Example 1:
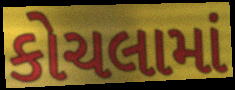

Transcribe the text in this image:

કોચલામાં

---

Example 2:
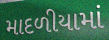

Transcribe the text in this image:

માદળીયામાં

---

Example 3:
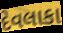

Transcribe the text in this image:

દેવલાકા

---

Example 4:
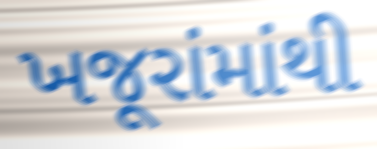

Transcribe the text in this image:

ખજૂરાંમાંથી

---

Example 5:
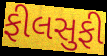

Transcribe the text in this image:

ફીલસુફી